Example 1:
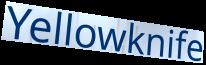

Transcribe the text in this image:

Yellowknife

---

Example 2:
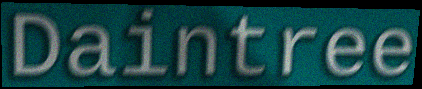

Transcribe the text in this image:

Daintree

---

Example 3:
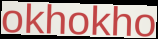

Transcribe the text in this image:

okhokho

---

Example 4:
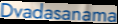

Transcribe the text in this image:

Dvadasanama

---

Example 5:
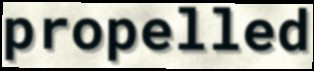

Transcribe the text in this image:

propelled